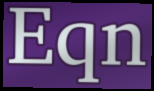
Eqn